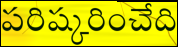
పరిష్కరించేది